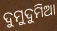
ଦୁମୁଦୁମିଆ